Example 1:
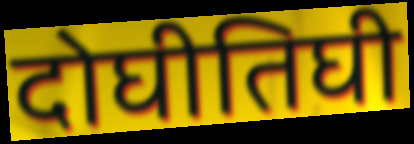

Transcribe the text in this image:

दोघीतिघी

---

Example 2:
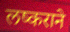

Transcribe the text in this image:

लष्कराने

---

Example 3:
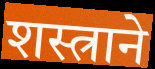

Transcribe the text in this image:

शस्त्राने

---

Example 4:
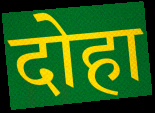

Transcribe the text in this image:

दोहा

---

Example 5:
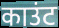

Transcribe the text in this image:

काउंट